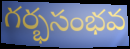
గర్భసంభవ